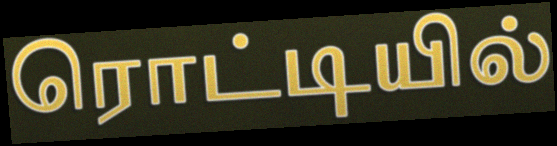
ரொட்டியில்